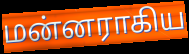
மன்னராகிய